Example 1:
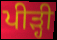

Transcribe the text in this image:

ਪੀੜ੍ਹੀ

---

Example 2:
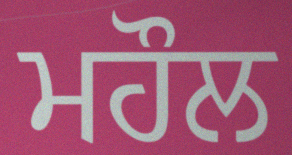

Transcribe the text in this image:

ਮਹੌਲ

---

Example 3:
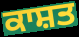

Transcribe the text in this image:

ਕਾਸ਼ਤ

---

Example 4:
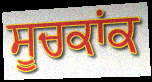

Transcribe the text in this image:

ਸੂਚਕਾਂਕ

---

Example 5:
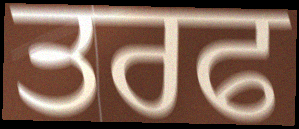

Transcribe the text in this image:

ਤਰਫ